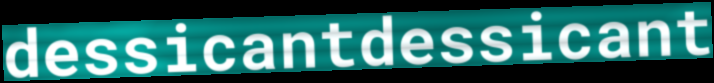
dessicantdessicant